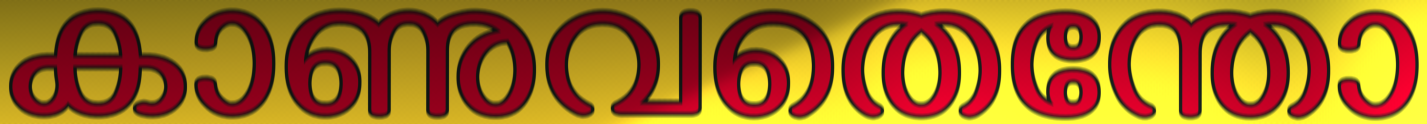
കാണുവതെന്തോ